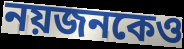
নয়জনকেও